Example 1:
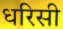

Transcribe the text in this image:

धरिसी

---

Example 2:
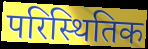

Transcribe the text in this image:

परिस्थितिक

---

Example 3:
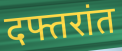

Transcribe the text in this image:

दफ्तरांत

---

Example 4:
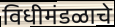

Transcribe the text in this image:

विधीमंडळाचे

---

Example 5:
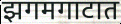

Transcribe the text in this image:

झगमगाटात